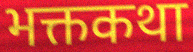
भक्तकथा